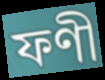
ফণী